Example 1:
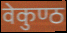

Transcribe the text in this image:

वेकुण्ठ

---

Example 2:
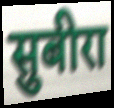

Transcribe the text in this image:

सुबीरा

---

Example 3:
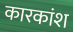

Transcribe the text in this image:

कारकांश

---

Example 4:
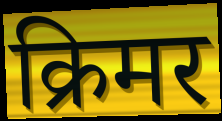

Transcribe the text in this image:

क्रिमर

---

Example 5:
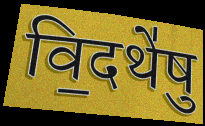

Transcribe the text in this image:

वि॒दथे॑षु